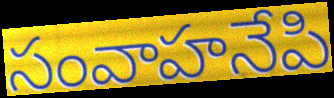
సంవాహనేపి